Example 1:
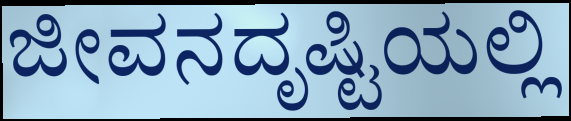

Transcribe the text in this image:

ಜೀವನದೃಷ್ಟಿಯಲ್ಲಿ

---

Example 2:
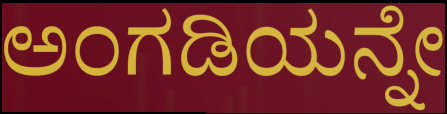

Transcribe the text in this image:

ಅಂಗಡಿಯನ್ನೇ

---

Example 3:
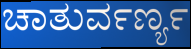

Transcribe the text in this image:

ಚಾತುರ್ವರ್ಣ್ಯ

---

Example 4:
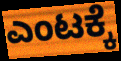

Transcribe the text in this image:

ಎಂಟಕ್ಕೆ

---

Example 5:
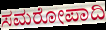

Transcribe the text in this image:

ಸಮರೋಪಾದಿ